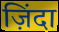
ज़िंदा